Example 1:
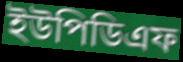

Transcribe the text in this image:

ইউপিডিএফ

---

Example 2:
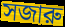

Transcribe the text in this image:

সজারু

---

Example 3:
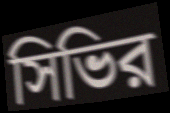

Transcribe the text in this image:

সিভির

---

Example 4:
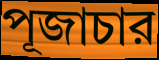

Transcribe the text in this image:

পূজাচার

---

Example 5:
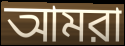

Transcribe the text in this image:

আমরা